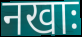
नखाः